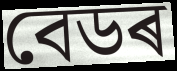
বেডৰ